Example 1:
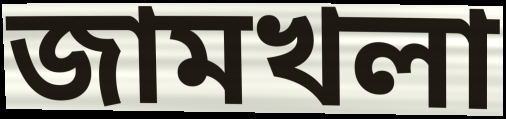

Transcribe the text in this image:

জামখলা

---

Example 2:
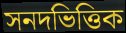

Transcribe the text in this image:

সনদভিত্তিক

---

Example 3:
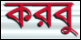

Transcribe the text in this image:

করবু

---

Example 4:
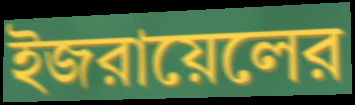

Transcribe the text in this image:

ইজরায়েলের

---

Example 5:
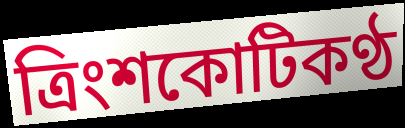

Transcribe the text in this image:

ত্রিংশকোটিকণ্ঠ